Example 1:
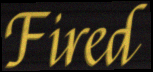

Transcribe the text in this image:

Fired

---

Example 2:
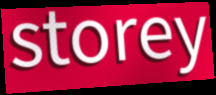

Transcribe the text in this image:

storey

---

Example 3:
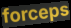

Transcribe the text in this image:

forceps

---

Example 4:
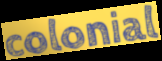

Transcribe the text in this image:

colonial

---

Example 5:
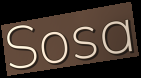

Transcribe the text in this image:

Sosa